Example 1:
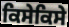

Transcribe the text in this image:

ਕਿਸੇਕਿਸੇ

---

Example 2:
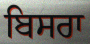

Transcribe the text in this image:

ਬਿਸਰਾ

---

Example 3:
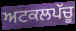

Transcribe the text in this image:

ਅਟਕਲਪੱਚੂ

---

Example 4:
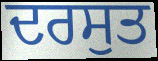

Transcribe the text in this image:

ਦਰਸੁਤ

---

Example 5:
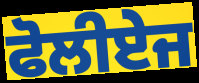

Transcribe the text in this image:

ਫੋਲੀਏਜ